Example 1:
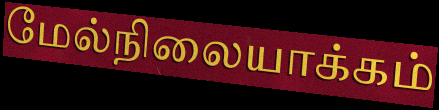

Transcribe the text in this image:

மேல்நிலையாக்கம்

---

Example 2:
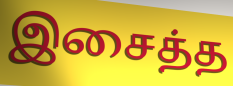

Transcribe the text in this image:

இசைத்த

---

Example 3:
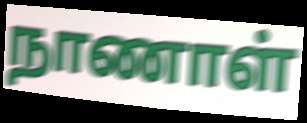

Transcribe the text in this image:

நாணாள்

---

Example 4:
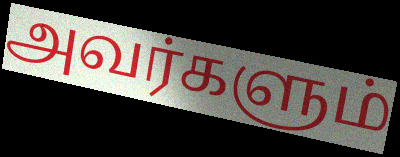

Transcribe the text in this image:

அவர்களும்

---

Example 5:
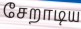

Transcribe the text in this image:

சேறாடிய